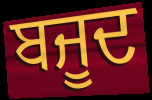
ਬਜੂਦ